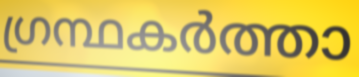
ഗ്രന്ഥകർത്താ